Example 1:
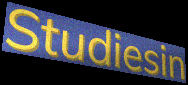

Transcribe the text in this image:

Studiesin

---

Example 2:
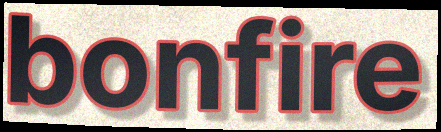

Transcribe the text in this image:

bonfire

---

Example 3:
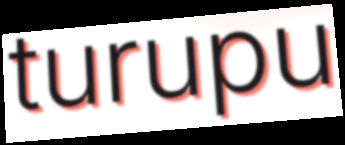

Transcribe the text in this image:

turupu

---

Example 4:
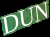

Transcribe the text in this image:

DUN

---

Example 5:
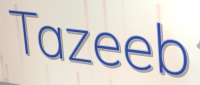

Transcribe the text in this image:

Tazeeb